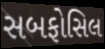
સબફોસિલ